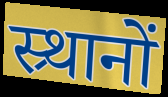
स्र्थानों